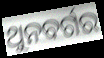
ଥୁନବର୍ଗର